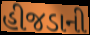
હીજડાની